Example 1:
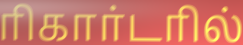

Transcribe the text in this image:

ரிகார்டரில்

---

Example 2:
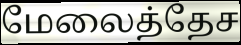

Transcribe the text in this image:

மேலைத்தேச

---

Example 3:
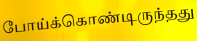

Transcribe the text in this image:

போய்க்கொண்டிருந்தது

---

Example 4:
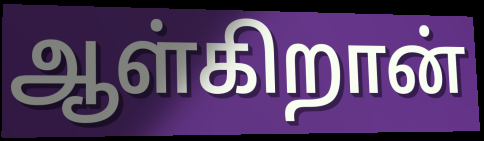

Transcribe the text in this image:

ஆள்கிறான்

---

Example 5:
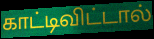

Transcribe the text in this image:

காட்டிவிட்டால்